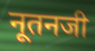
नूतनजी